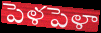
పెళపెళా